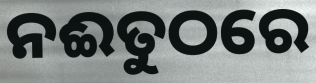
ନଈତୁଠରେ